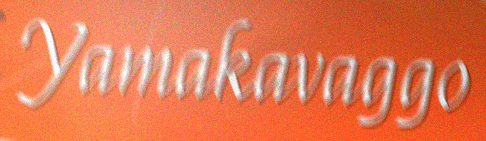
Yamakavaggo